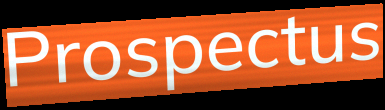
Prospectus